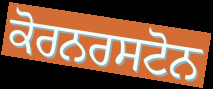
ਕੋਰਨਰਸਟੋਨ